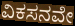
ವಿಕಸನವೇ